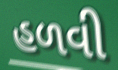
હળવી